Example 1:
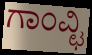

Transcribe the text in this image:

ಗಾಂವ್ಟಿ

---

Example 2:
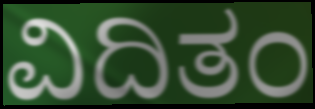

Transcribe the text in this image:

ವಿದಿತಂ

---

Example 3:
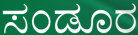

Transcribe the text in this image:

ಸಂಡೂರ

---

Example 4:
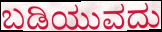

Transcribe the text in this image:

ಬಡಿಯುವದು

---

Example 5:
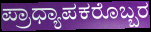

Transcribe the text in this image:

ಪ್ರಾಧ್ಯಾಪಕರೊಬ್ಬರ